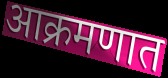
आक्रमणात